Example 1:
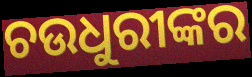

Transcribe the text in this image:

ଚଉଧୁରୀଙ୍କର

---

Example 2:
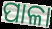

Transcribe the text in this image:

ପାଳା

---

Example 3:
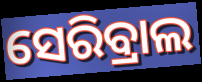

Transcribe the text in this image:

ସେରିବ୍ରାଲ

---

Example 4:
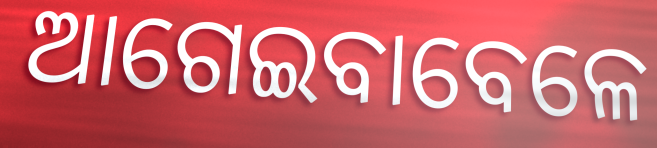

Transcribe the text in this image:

ଆଗେଇବାବେଳେ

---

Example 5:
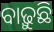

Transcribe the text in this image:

ବାଢ଼ୁଛି